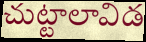
చుట్టాలావిడ